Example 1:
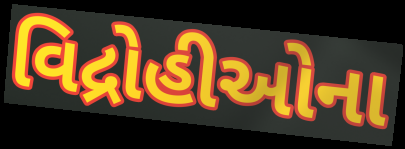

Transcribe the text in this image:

વિદ્રોહીઓના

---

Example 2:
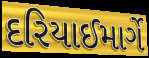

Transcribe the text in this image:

દરિયાઈમાર્ગે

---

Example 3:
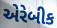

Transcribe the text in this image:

એરેબીક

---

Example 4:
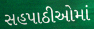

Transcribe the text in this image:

સહપાઠીઓમાં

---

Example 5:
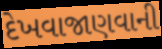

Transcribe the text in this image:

દેખવાજાણવાની